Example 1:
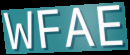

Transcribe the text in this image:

WFAE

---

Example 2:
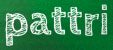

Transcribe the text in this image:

pattri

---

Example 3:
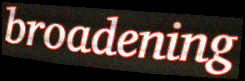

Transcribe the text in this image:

broadening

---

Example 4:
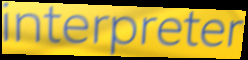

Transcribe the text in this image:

interpreter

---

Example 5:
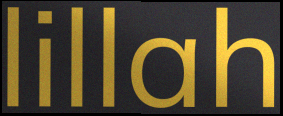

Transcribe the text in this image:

lillah